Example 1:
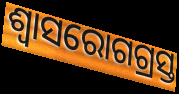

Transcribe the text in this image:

ଶ୍ୱାସରୋଗଗ୍ରସ୍ତ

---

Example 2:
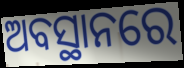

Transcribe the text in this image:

ଅବସ୍ଥାନରେ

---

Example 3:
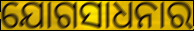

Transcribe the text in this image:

ଯୋଗସାଧନାର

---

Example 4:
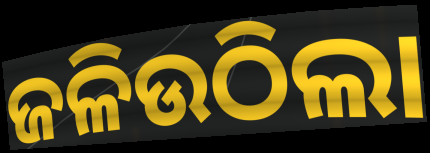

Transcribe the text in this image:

ଜଳିଉଠିଲା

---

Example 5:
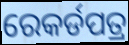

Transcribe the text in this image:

ରେକର୍ଡପତ୍ର